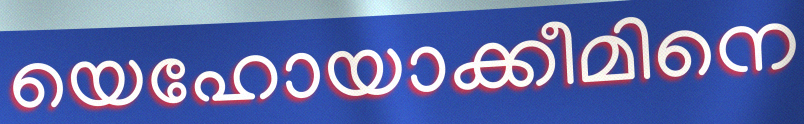
യെഹോയാക്കീമിനെ